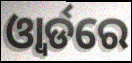
ଓ୍ବାର୍ଡରେ